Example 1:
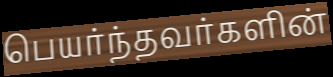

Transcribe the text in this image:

பெயர்ந்தவர்களின்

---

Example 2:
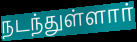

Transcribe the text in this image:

நடந்துள்ளார்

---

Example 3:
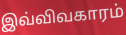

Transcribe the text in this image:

இவ்விவகாரம்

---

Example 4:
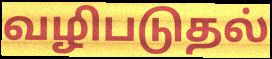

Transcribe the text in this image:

வழிபடுதல்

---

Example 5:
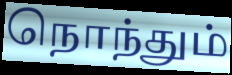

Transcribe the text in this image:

நொந்தும்